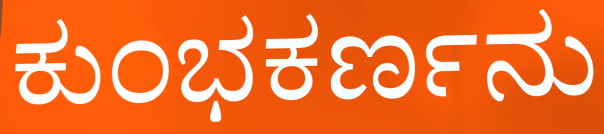
ಕುಂಭಕರ್ಣನು